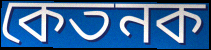
কেতনক